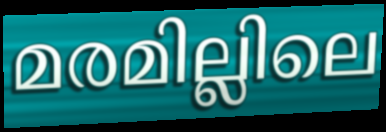
മരമില്ലിലെ